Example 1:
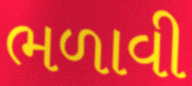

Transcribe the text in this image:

ભળાવી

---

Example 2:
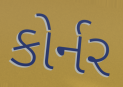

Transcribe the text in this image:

કોર્નર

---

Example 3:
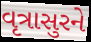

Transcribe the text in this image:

વૃત્રાસુરને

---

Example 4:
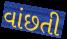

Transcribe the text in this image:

વાંછતી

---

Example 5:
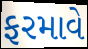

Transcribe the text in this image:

ફરમાવે